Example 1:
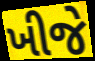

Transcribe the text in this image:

ખીજે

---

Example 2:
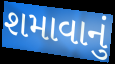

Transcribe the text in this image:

શમાવાનું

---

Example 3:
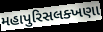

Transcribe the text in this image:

મહાપુરિસલક્ખણા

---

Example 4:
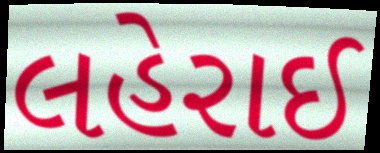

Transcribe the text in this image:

લહેરાઈ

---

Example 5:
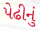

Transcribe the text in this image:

પેઢીનું